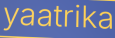
yaatrika